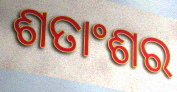
ଶତାଂଶର